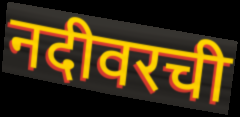
नदीवरची